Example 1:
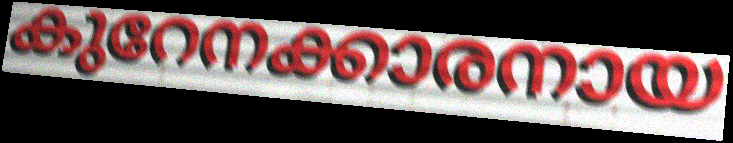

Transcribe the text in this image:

കുറേനക്കാരനായ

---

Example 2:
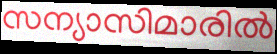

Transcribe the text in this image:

സന്യാസിമാരിൽ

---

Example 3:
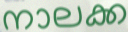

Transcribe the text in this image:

നാലക്ക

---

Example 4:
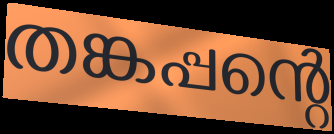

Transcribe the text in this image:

തങ്കപ്പന്റെ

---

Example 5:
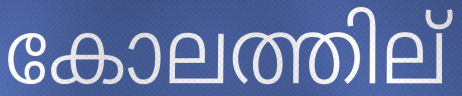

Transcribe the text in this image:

കോലത്തില്